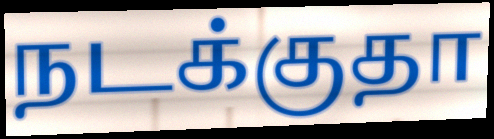
நடக்குதா